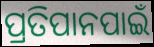
ପ୍ରତିପାନପାଇଁ